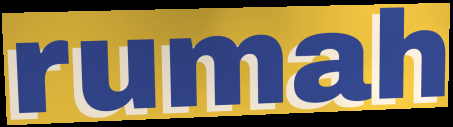
rumah